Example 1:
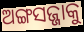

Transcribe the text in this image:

ଅଙ୍ଗସଜ୍ଜାକୁ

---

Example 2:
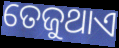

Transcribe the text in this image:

ତେଜୁଥାଏ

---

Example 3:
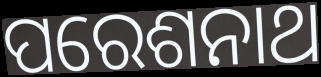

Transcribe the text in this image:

ପରେଶନାଥ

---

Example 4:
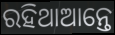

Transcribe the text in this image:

ରହିଥାଆନ୍ତେ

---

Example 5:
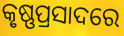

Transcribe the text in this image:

କୃଷ୍ଣପ୍ରସାଦରେ